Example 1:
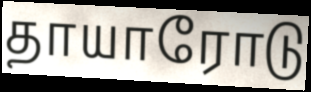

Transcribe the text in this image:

தாயாரோடு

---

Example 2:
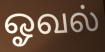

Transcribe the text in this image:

ஓவல்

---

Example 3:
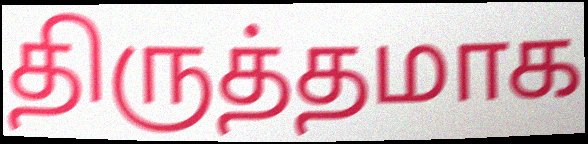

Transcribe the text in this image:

திருத்தமாக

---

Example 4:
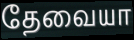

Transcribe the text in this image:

தேவையா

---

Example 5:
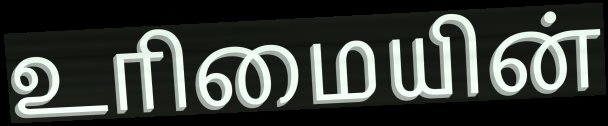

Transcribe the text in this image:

உரிமையின்